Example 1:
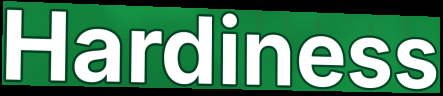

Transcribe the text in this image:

Hardiness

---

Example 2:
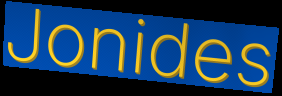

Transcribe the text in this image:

Jonides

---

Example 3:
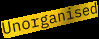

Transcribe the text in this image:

Unorganised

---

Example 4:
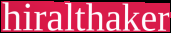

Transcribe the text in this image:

hiralthaker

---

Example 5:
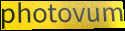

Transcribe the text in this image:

photovum